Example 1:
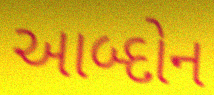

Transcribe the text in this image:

આબ્દોન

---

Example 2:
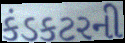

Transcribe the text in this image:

કંડકટરની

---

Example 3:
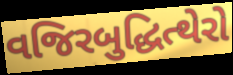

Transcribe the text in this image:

વજિરબુદ્ધિત્થેરો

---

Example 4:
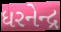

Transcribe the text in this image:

ધરનેન્દ્ર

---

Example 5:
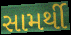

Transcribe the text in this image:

સામર્થી